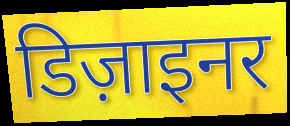
डिज़ाइनर